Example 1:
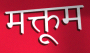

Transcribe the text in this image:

मक्तूम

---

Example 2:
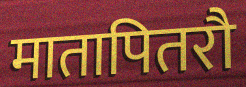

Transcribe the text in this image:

मातापितरौ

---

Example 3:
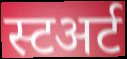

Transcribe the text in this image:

स्टअर्ट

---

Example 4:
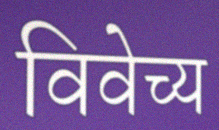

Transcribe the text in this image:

विवेच्य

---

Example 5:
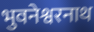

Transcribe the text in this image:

भुवनेश्वरनाथ